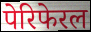
पेरिफेरल